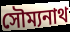
সৌম্যনাথ